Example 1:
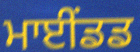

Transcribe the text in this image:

ਮਾਈਂਡਡ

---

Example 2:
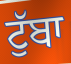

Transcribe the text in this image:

ਟੁੱਬਾ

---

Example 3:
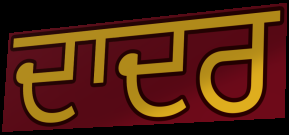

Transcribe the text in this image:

ਦਾਦਰ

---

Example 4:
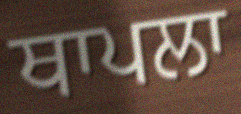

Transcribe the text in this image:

ਥਾਪਲਾ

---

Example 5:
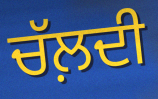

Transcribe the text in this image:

ਚੱਲ਼ਦੀ